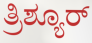
ತ್ರಿಶ್ಯೂರ್